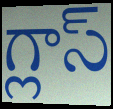
గ్లాస్